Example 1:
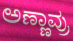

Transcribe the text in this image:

ಅಣ್ಣಾವ್ರು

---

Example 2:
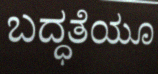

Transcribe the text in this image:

ಬದ್ಧತೆಯೂ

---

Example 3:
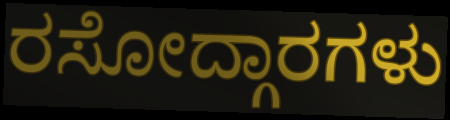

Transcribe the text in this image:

ರಸೋದ್ಗಾರಗಳು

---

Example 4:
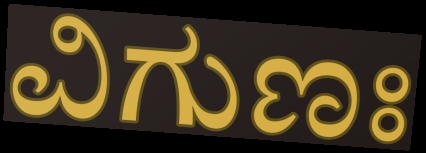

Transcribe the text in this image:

ವಿಗುಣಃ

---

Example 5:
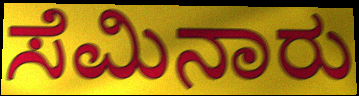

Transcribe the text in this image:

ಸೆಮಿನಾರು